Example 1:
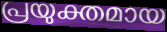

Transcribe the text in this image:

പ്രയുക്തമായ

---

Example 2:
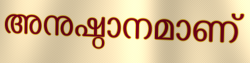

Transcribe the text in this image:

അനുഷ്ഠാനമാണ്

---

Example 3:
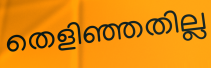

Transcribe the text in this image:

തെളിഞ്ഞതില്ല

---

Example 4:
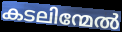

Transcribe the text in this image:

കടലിന്മേൽ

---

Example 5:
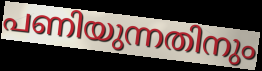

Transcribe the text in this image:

പണിയുന്നതിനും